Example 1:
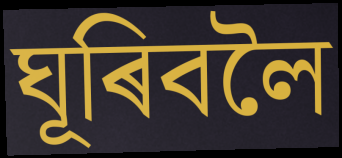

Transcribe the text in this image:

ঘূৰিবলৈ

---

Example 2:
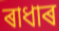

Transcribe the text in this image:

ৰাধাৰ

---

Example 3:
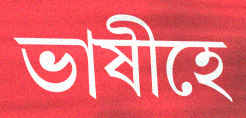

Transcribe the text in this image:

ভাষীহে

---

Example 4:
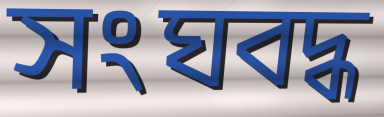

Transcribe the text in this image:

সংঘবদ্ধ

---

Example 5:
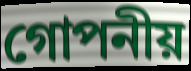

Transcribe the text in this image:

গোপনীয়